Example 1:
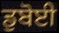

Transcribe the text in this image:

ਡੁਬੋਈ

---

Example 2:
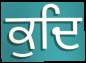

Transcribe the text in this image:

ਕੁਦਿ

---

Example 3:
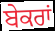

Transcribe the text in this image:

ਬੇਕਰਾਂ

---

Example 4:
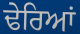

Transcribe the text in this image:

ਢੇਰਿਆਂ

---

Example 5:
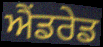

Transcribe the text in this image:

ਐਂਡਰੇਡ